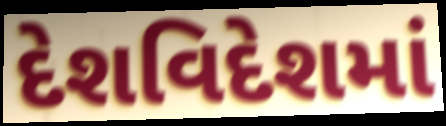
દેશવિદેશમાં